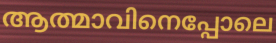
ആത്മാവിനെപ്പോലെ